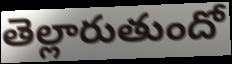
తెల్లారుతుందో